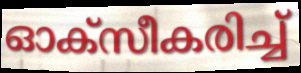
ഓക്സീകരിച്ച്